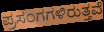
ಪ್ರಸಂಗಗಳಿರುತ್ತವೆ